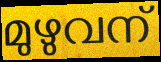
മുഴുവന്